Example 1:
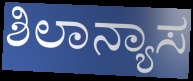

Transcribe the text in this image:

ಶಿಲಾನ್ಯಾಸ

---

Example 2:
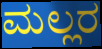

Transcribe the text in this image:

ಮಲ್ಲರ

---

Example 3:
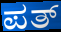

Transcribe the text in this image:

ಪತ್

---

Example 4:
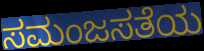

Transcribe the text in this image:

ಸಮಂಜಸತೆಯ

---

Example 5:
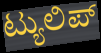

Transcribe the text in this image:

ಟ್ಯುಲಿಪ್